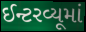
ઈન્ટરવ્યૂમાં